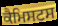
ਕੈਮਿਸਟਸ